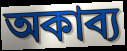
অকাব্য